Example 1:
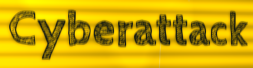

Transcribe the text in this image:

Cyberattack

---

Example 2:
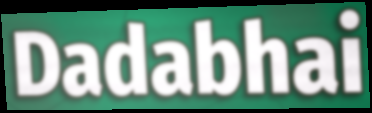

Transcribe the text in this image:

Dadabhai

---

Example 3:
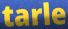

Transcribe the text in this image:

tarle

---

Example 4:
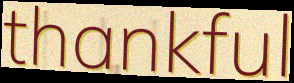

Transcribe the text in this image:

thankful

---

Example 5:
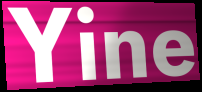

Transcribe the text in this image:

Yine